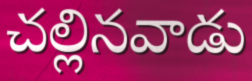
చల్లినవాడు